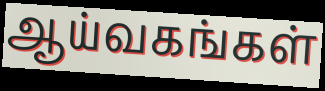
ஆய்வகங்கள்